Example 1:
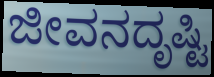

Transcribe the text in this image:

ಜೀವನದೃಷ್ಟಿ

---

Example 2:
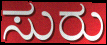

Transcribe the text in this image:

ಸುರು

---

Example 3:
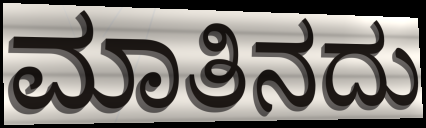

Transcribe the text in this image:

ಮಾತಿನದು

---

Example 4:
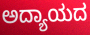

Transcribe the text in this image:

ಅದ್ಯಾಯದ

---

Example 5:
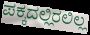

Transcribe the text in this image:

ಪಕ್ಕದಲ್ಲಿರಲಿಲ್ಲ